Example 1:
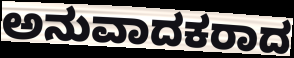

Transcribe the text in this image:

ಅನುವಾದಕರಾದ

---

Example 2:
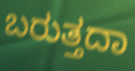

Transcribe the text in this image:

ಬರುತ್ತದಾ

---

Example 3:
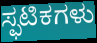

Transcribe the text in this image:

ಸ್ಫಟಿಕಗಳು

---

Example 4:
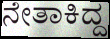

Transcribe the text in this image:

ನೇತಾಕಿದ್ದ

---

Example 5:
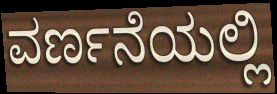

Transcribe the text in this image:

ವರ್ಣನೆಯಲ್ಲಿ